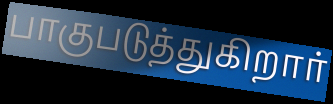
பாகுபடுத்துகிறார்